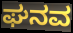
ಘನವ